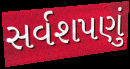
સર્વશપણું